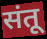
संतू